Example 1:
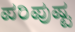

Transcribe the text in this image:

ಪರಿಪುಷ್ಟ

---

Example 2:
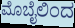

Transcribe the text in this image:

ಮೊಬೈಲಿಂದ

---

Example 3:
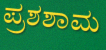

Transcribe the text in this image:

ಪ್ರಶಶಾಮ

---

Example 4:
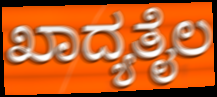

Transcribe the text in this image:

ಖಾದ್ಯತೈಲ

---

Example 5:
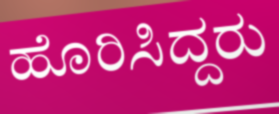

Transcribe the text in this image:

ಹೊರಿಸಿದ್ದರು